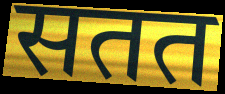
सतत